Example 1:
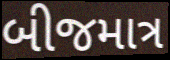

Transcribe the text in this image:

બીજમાત્ર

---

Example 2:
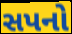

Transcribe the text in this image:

સપનો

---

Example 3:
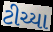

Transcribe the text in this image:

ટીચ્યા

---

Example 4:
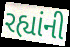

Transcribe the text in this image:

રહ્યાંની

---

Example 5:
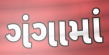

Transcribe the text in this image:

ગંગામાં